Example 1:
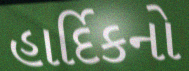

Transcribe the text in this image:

હાર્દિકનો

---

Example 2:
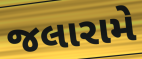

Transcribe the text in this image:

જલારામે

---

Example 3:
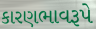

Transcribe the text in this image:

કારણભાવરૂપે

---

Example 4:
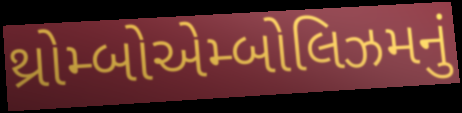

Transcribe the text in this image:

થ્રોમ્બોએમ્બોલિઝમનું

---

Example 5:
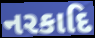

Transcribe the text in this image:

નરકાદિ